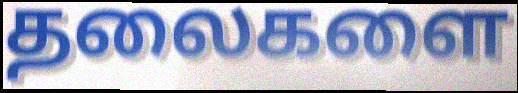
தலைகளை